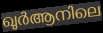
ഖുർആനിലെ